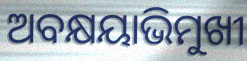
ଅବକ୍ଷୟାଭିମୁଖୀ